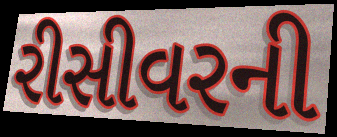
રીસીવરની